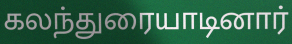
கலந்துரையாடினார்